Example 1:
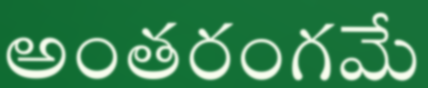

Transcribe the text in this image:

అంతరంగమే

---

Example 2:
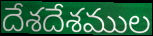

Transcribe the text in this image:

దేశదేశముల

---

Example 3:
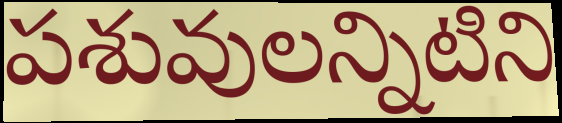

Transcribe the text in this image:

పశువులన్నిటిని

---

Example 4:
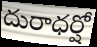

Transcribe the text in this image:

దురాధర్షో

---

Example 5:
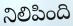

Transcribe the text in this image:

నిలిపింది